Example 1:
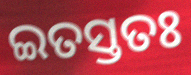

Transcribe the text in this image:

ଇତସ୍ତତଃ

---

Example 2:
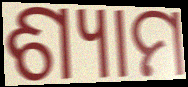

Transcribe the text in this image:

ଶ୍ୟାମ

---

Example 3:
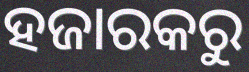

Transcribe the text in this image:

ହଜାରକରୁ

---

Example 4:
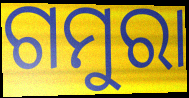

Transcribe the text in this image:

ଗମୁରା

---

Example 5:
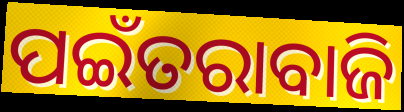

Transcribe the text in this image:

ପଇଁତରାବାଜି